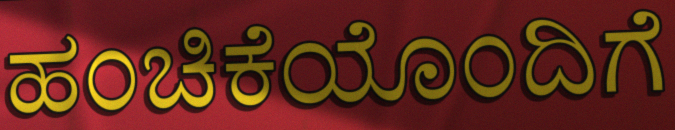
ಹಂಚಿಕೆಯೊಂದಿಗೆ